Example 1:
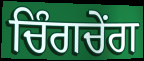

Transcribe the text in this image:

ਚਿੰਗਚੇਂਗ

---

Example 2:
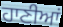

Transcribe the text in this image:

ਹਾਣੀਆਂ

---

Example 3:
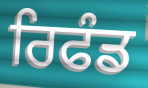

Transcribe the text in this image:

ਰਿਫੰਡ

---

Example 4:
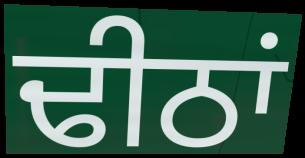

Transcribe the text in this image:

ਢੀਠਾਂ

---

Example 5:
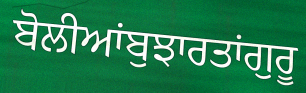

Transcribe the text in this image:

ਬੋਲੀਆਂਬੁਝਾਰਤਾਂਗੁਰੂ